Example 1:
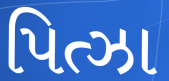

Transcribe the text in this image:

પિત્ઝા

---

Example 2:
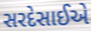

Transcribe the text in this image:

સરદેસાઈએ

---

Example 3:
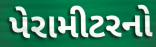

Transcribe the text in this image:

પેરામીટરનો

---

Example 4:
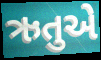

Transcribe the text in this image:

ઋતુએ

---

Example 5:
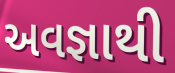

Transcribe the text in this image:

અવજ્ઞાથી